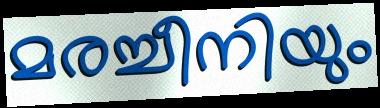
മരച്ചീനിയും